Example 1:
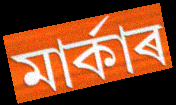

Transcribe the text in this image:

মাৰ্কাৰ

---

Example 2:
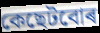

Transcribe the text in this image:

কেছেটবোৰ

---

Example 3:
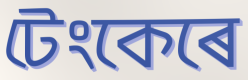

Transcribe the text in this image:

টেংকেৰে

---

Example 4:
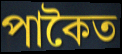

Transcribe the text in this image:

পাকৈত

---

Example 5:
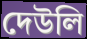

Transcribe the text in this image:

দেউলি